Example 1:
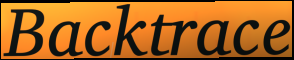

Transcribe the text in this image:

Backtrace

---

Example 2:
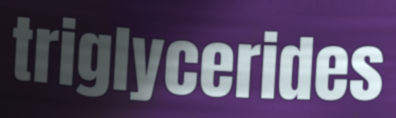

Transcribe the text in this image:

triglycerides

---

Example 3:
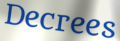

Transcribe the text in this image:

Decrees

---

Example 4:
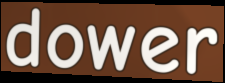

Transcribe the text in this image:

dower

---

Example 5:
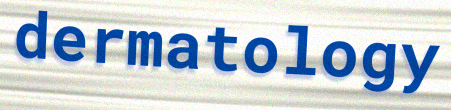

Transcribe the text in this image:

dermatology